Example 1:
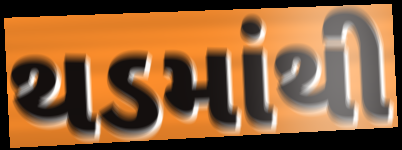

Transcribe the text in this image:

થડમાંથી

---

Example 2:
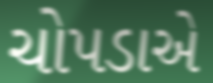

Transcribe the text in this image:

ચોપડાએ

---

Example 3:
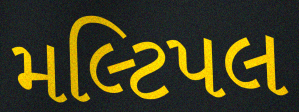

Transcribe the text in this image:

મલ્ટિપલ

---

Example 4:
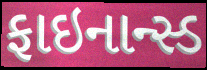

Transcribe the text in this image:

ફાઇનાન્સ્ડ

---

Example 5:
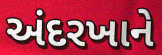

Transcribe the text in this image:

અંદરખાને